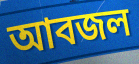
আবজল